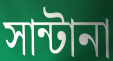
সান্টানা